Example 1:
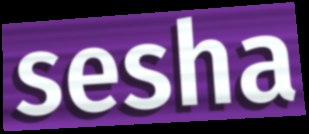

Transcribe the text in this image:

sesha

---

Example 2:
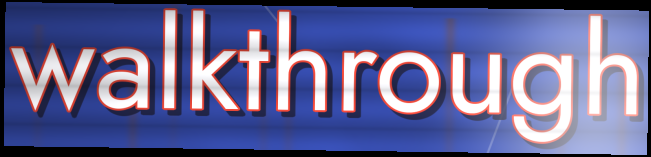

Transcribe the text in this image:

walkthrough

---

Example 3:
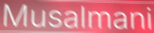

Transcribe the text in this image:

Musalmani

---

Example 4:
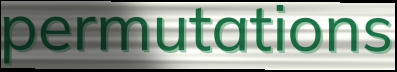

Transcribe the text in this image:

permutations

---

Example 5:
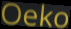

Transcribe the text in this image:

Oeko